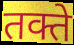
तक्ते